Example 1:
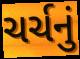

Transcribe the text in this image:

ચર્ચનું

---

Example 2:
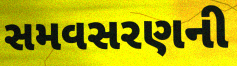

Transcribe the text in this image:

સમવસરણની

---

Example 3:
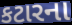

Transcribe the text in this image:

કટારના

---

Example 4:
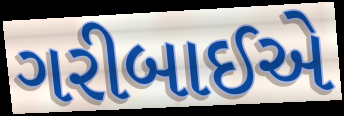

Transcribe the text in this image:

ગરીબાઈએ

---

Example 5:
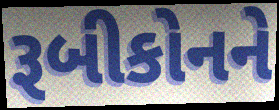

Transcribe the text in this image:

રૂબીકોનને